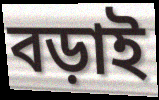
বড়াই